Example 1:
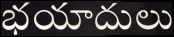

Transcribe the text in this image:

భయాదులు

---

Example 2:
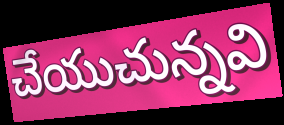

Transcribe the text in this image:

చేయుచున్నవి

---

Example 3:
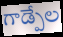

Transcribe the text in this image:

గాడ్పేల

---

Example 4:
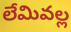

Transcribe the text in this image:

లేమివల్ల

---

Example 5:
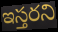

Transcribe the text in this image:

ఇస్తరని